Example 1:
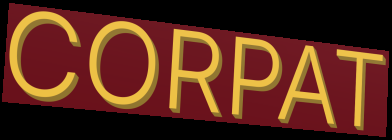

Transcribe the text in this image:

CORPAT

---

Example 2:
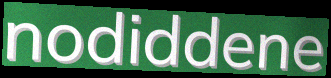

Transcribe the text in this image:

nodiddene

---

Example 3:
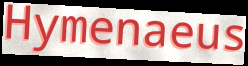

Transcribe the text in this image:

Hymenaeus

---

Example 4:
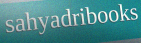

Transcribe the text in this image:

sahyadribooks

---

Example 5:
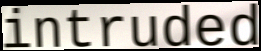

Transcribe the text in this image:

intruded